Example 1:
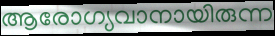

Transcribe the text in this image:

ആരോഗ്യവാനായിരുന്ന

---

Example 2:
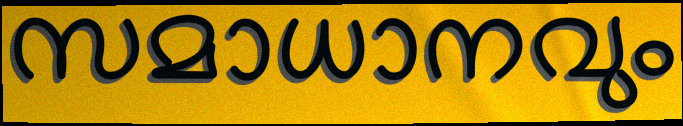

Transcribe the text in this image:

സമാധാനവും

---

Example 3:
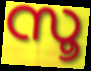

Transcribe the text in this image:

സൂ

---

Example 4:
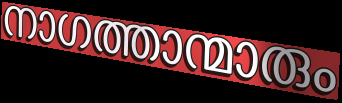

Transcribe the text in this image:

നാഗത്താന്മാരും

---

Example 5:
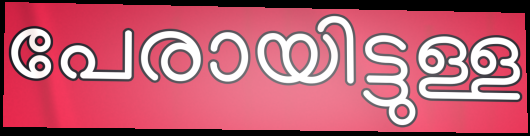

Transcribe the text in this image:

പേരായിട്ടുള്ള